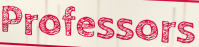
Professors